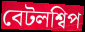
বেটলশ্বিপ